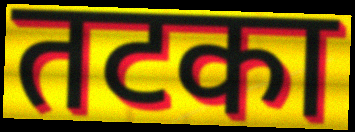
तटका